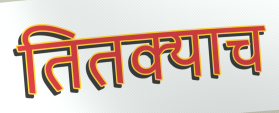
तितक्याच